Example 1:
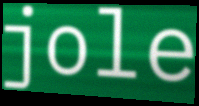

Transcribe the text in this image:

jole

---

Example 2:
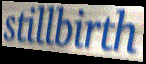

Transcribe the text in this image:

stillbirth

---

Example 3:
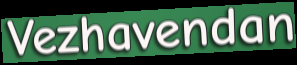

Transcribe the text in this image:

Vezhavendan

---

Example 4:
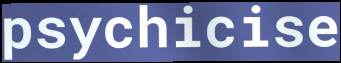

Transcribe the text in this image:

psychicise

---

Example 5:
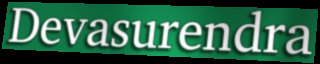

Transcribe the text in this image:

Devasurendra